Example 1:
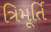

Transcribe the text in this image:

ત્રિમૂર્તિ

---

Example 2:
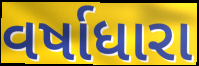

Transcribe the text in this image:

વર્ષાધારા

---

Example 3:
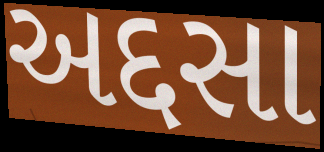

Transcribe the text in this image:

અદ્દસા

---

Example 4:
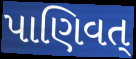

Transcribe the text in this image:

પાણિવત્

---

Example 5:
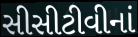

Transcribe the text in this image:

સીસીટીવીનાં